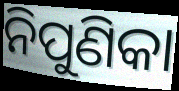
ନିପୁଣିକା